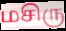
மசிரு